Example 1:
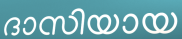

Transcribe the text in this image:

ദാസിയായ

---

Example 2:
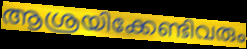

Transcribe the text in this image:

ആശ്രയിക്കേണ്ടിവരും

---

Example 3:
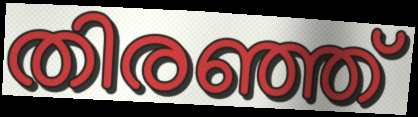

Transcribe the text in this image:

തിരഞ്ഞ്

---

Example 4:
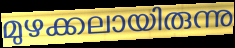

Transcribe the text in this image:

മുഴക്കലായിരുന്നു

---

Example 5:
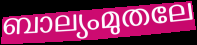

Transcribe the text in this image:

ബാല്യംമുതലേ